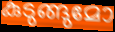
കുടുങ്ങുമോ